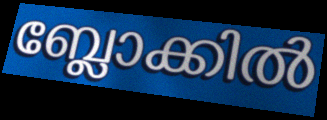
ബ്ലോക്കിൽ